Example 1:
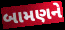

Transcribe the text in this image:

બામણને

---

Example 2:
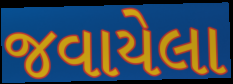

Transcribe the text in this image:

જવાયેલા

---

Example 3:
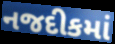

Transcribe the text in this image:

નજદીકમાં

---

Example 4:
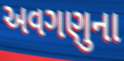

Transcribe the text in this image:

અવગણુના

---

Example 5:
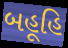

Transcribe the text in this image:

બહૂહિ